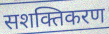
सशक्तिकरण